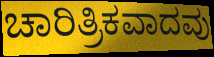
ಚಾರಿತ್ರಿಕವಾದವು